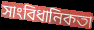
সাংবিধানিকতা